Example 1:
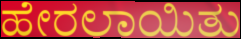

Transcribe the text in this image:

ಹೇರಲಾಯಿತು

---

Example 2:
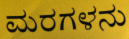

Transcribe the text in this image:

ಮರಗಳನು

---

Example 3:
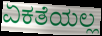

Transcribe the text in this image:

ಏಕತೆಯಲ್ಲ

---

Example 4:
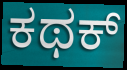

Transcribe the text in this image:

ಕಥಕ್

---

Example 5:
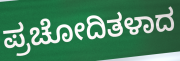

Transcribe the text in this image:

ಪ್ರಚೋದಿತಳಾದ